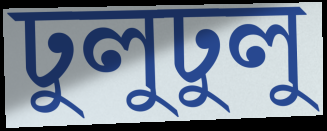
ঢুলুঢুলু